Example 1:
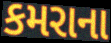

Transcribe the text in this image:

કમરાના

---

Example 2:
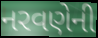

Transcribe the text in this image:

નરવણેની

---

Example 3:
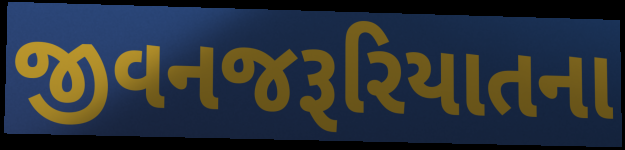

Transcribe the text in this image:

જીવનજરૂરિયાતના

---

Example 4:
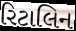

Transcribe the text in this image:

રિટાલિન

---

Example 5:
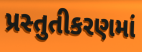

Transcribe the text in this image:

પ્રસ્તુતીકરણમાં